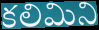
కలిమిని